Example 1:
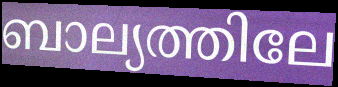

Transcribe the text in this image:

ബാല്യത്തിലേ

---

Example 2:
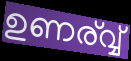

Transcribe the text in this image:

ഉണര്വ്വ്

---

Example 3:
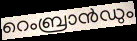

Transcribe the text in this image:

റെംബ്രാൻഡും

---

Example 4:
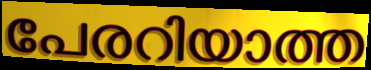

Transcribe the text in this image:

പേരറിയാത്ത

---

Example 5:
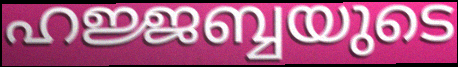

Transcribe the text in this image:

ഹജ്ജബ്ബയുടെ